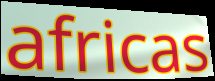
africas